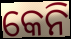
କେନି